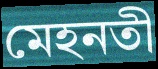
মেহনতী